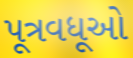
પૂત્રવધૂઓ